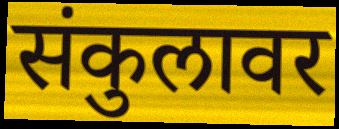
संकुलावर